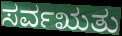
ಸರ್ವಋತು